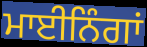
ਮਾਈਨਿੰਗਾਂ